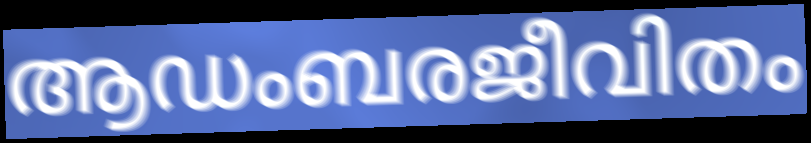
ആഡംബരജീവിതം